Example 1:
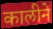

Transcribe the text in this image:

कालीने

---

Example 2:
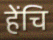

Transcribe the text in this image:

हेंचि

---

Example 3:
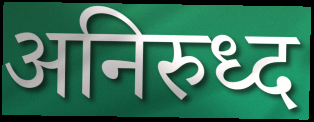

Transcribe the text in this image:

अनिरुध्द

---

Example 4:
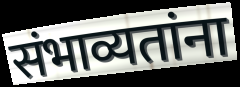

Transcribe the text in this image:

संभाव्यतांना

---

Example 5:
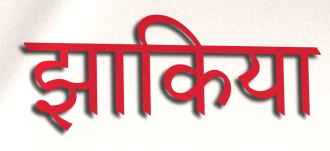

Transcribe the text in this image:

झाकिया